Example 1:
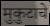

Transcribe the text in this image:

मुकुटाचे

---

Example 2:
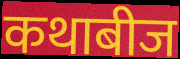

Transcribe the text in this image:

कथाबीज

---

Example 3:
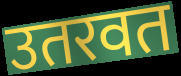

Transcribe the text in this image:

उतरवत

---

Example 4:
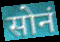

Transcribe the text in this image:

सोनं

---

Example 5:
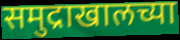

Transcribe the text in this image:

समुद्राखालच्या